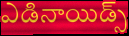
ఎడినాయిడ్స్